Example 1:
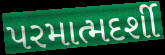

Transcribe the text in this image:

પરમાત્મદર્શી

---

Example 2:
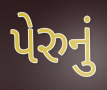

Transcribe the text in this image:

પેરુનું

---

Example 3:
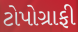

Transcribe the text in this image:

ટોપોગ્રાફી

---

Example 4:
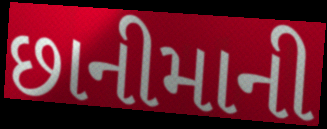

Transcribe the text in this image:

છાનીમાની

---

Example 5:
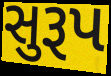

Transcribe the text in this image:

સુરૂપ